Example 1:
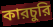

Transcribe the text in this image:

কারচুরি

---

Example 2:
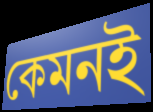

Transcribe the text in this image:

কেমনই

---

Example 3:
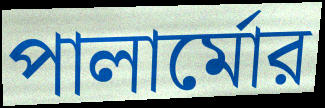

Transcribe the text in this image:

পালার্মোর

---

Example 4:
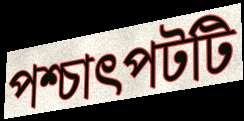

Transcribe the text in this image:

পশ্চাৎপটটি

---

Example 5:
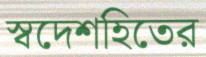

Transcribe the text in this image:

স্বদেশহিতের